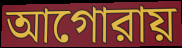
আগোরায়